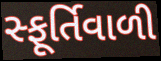
સ્ફૂર્તિવાળી